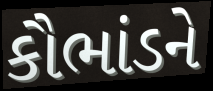
કૌભાંડને